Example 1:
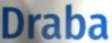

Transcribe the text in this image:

Draba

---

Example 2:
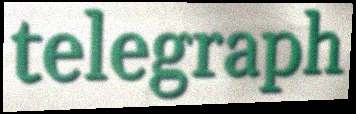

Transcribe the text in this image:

telegraph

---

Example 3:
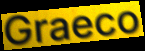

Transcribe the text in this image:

Graeco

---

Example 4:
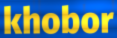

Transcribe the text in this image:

khobor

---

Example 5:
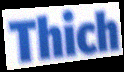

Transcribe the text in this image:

Thich